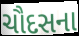
ચૌદસના